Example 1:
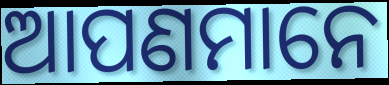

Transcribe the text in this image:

ଆପଣମାନେ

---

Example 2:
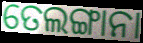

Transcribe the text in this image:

ତେଲଙ୍ଗାନା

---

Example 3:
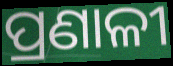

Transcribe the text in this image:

ପ୍ରଣାଳୀ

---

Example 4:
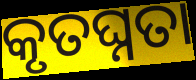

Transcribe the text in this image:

କୃତଘ୍ନତା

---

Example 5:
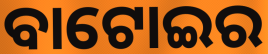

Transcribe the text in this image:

ବାଟୋଇର